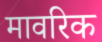
मावरिक